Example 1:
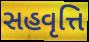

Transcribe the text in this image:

સહવૃત્તિ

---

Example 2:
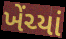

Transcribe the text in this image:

ખેંચ્યાં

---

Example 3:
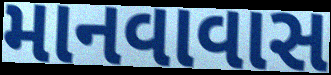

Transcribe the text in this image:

માનવાવાસ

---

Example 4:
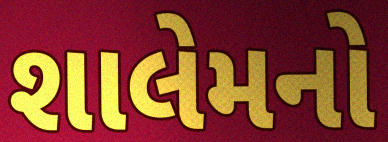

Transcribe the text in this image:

શાલેમનો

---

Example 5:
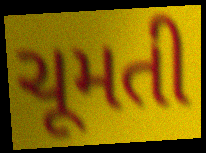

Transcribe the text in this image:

ચૂમતી